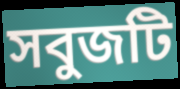
সবুজটি